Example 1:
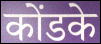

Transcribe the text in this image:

कोंडके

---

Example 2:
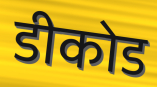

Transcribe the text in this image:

डीकोड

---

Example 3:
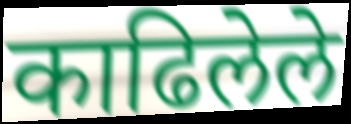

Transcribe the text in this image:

काढिलेले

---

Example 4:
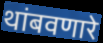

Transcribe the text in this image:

थांबवणारे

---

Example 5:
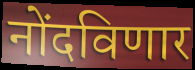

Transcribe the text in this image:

नोंदविणार